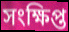
সংক্ষিপ্ত